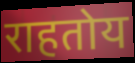
राहतोय